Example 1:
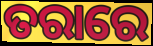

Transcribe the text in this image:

ତରାରେ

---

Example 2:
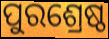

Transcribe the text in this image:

ପୁରଶ୍ରେଷ୍ଠ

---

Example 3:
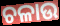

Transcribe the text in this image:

ଚଳାଉ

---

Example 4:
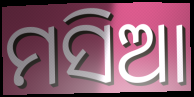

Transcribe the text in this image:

ମସିଆ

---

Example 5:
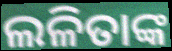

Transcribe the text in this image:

ଲଳିତାଙ୍କ